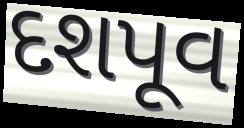
દશપૂવ